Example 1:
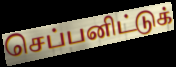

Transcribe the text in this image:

செப்பனிட்டுக்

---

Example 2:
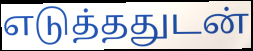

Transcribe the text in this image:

எடுத்ததுடன்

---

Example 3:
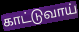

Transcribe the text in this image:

காட்டுவாய்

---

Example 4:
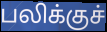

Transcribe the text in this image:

பலிக்குச்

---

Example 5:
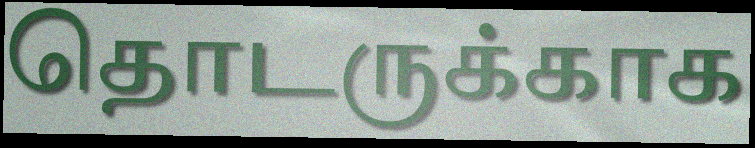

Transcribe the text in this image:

தொடருக்காக